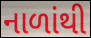
નાળાંથી